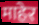
माहेर